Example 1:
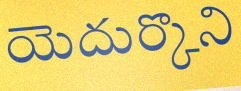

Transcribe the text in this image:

యెదుర్కొని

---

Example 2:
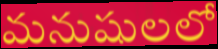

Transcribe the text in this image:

మనుషులలో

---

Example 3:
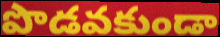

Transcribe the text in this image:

పొడవకుండా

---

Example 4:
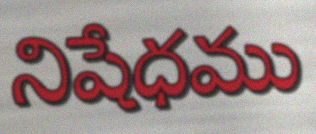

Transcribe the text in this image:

నిషేధము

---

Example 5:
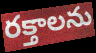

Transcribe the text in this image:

రక్తాలను